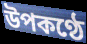
উপকণ্ঠে